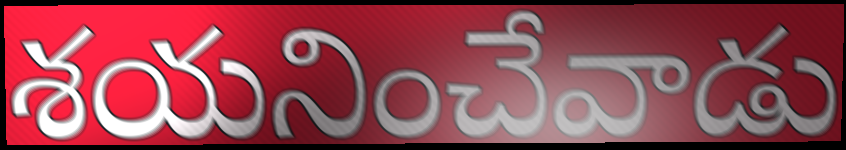
శయనించేవాడు